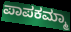
ಪಾಪಕಮ್ಮಾ